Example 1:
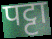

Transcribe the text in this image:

पट्टा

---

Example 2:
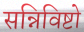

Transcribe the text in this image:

सन्निविष्टो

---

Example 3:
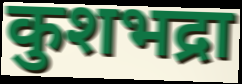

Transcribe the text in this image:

कुशभद्रा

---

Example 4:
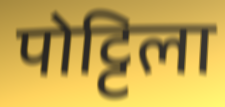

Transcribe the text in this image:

पोट्टिला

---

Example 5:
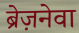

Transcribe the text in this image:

ब्रेज़नेवा